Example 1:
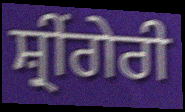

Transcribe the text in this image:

ਸ਼੍ਰੀਂਗੇਰੀ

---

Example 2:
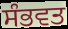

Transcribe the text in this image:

ਸੰਭਵਤ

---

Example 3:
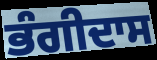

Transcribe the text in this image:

ਭੰਗੀਦਾਸ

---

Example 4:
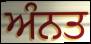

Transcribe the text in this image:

ਅੰਨਤ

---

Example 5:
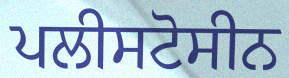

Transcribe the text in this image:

ਪਲੀਸਟੋਸੀਨ